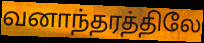
வனாந்தரத்திலே